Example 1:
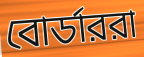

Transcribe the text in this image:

বোর্ডাররা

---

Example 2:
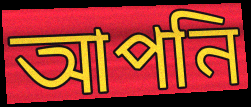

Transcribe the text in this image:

আপনি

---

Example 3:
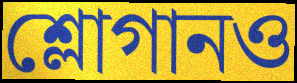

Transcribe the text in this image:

শ্লোগানও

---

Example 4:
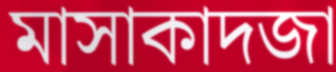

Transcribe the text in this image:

মাসাকাদজা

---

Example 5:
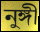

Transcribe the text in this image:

নুঙ্গী